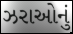
ઝરાઓનું